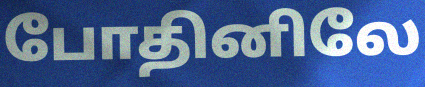
போதினிலே